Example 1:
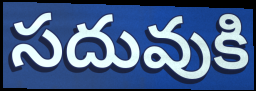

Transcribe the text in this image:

సదువుకి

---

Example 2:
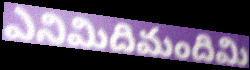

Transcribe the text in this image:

ఎనిమిదిమందిమి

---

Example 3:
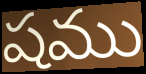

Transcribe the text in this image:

షము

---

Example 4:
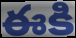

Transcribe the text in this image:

ఈకి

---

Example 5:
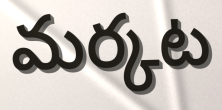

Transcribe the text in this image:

మర్కట